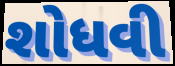
શોધવી